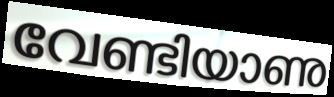
വേണ്ടിയാണു